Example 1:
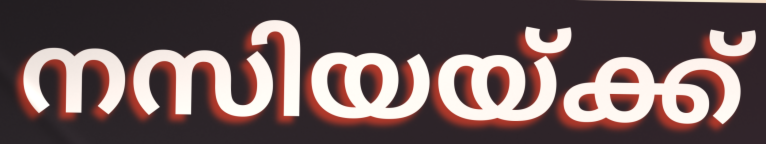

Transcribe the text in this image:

നസിയയ്ക്ക്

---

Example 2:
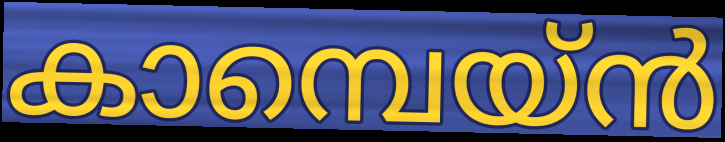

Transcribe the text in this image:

കാമ്പെയ്ൻ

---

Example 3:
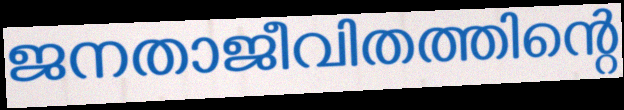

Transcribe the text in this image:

ജനതാജീവിതത്തിന്റെ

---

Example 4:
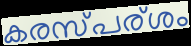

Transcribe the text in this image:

കരസ്പര്ശം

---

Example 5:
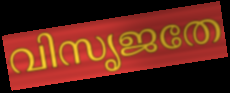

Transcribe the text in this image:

വിസൃജതേ